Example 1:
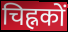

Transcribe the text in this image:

चिह्नकों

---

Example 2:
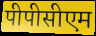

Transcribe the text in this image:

पीपीसीएम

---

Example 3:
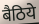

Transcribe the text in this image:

बैठिये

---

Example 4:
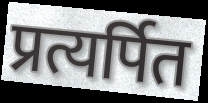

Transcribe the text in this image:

प्रत्यर्पित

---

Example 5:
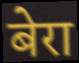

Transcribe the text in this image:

बेरा